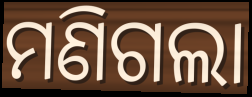
ମଣିଗଲା